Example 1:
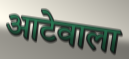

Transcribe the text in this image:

आटेवाला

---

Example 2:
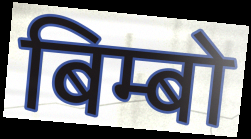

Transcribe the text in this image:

बिम्बो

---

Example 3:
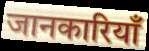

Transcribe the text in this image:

जानकारियाँ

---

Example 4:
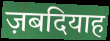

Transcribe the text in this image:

ज़बदियाह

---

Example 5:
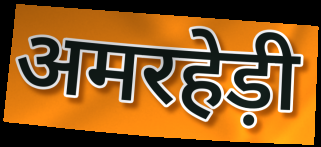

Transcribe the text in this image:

अमरहेड़ी